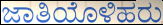
ಜಾತಿಯೊಳಿಹರು